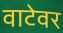
वाटेवर